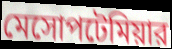
মেসোপটেমিয়ার